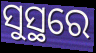
ସୁସ୍ଥରେ